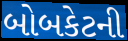
બોબકેટની